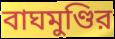
বাঘমুণ্ডির